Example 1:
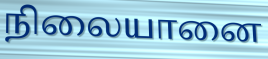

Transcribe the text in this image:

நிலையானை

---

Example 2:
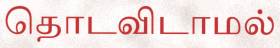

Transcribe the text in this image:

தொடவிடாமல்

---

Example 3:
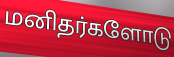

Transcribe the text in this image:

மனிதர்களோடு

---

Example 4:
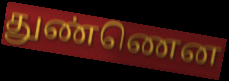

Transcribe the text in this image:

துண்ணென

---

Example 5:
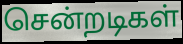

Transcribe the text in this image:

சென்றடிகள்